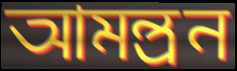
আমন্ত্রন